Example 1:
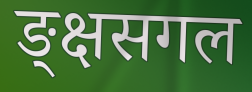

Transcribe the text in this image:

ङ्क्षसगल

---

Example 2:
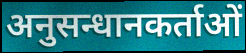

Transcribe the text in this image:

अनुसन्धानकर्ताओं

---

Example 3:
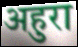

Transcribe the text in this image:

अहुरा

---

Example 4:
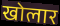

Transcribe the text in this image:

खोलार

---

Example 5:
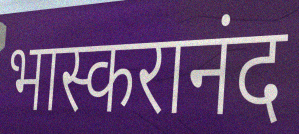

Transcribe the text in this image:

भास्करानंद